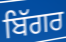
ਬਿੱਗਰ